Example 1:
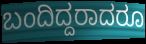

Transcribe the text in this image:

ಬಂದಿದ್ದರಾದರೂ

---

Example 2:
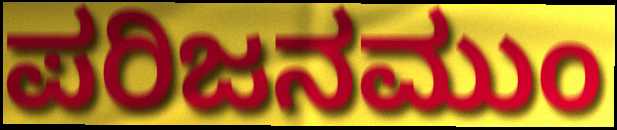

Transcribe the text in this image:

ಪರಿಜನಮುಂ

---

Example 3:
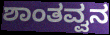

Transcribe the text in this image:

ಶಾಂತವ್ವನ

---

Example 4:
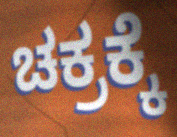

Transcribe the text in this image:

ಚಕ್ರಕ್ಕೆ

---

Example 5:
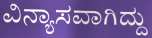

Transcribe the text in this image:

ವಿನ್ಯಾಸವಾಗಿದ್ದು